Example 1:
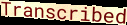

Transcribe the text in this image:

Transcribed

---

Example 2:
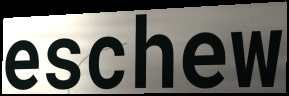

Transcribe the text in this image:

eschew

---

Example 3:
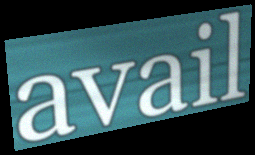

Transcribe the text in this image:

avail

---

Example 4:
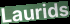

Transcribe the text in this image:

Laurids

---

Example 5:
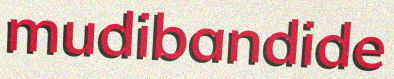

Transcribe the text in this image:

mudibandide